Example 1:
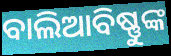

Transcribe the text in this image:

ବାଲିଆବିଷ୍ଣୁଙ୍କ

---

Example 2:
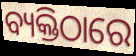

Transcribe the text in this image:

ବ୍ୟକ୍ତିଠାରେ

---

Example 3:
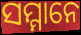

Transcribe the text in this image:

ସମ୍ମାନେ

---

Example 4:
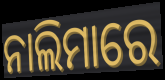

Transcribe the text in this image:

ନାଲିମାରେ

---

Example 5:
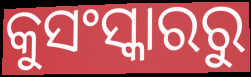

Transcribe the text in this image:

କୁସଂସ୍କାରରୁ